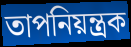
তাপনিয়ন্ত্রক